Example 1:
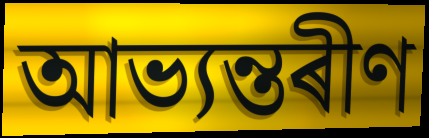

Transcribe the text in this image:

আভ্যন্তৰীণ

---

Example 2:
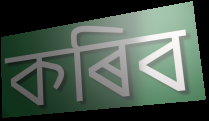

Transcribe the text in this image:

কৰিব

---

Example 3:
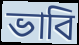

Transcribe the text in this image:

ভাবি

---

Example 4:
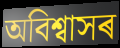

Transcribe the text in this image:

অবিশ্বাসৰ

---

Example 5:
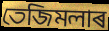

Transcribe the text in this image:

তেজিমলাৰ